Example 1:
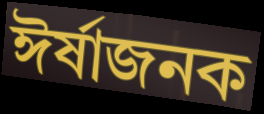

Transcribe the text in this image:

ঈর্ষাজনক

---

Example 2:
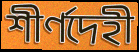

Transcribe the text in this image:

শীর্ণদেহী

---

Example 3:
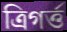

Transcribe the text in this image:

ত্রিগর্ত্ত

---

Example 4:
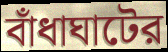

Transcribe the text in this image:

বাঁধাঘাটের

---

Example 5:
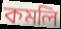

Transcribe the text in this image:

কমলি